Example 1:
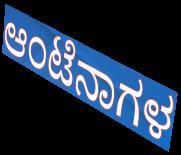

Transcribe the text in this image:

ಆಂಟೆನಾಗಳ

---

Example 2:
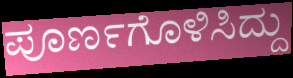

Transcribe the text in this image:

ಪೂರ್ಣಗೊಳಿಸಿದ್ದು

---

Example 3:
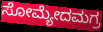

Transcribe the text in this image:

ಸೋಮ್ಯೇದಮಗ್ರ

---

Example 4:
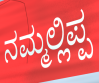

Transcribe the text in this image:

ನಮ್ಮಲ್ಲಿಪ್ಪ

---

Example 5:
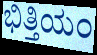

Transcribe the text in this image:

ಭಿತ್ತಿಯಂ